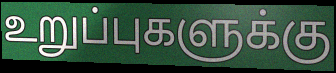
உறுப்புகளுக்கு